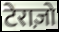
टेराज़ो